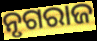
ନୃଗରାଜ